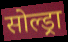
सोल्ड्रा